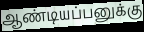
ஆண்டியப்பனுக்கு